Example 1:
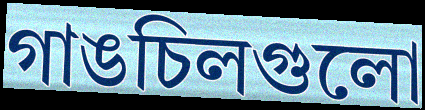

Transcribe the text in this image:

গাঙচিলগুলো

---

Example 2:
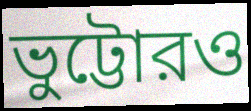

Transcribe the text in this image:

ভুট্টোরও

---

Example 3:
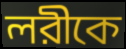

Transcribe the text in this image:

লরীকে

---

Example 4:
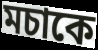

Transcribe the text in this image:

মচাকে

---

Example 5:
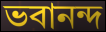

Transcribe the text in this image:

ভবানন্দ